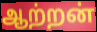
ஆற்றன்